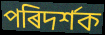
পৰিদৰ্শক